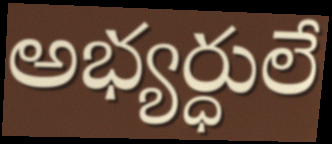
అభ్యర్ధులే